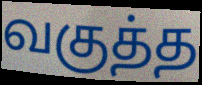
வகுத்த